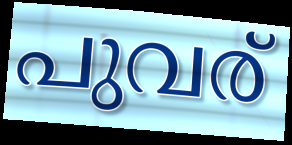
പുവര്